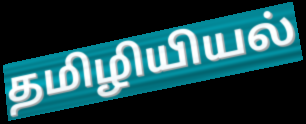
தமிழியியல்